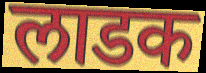
लाडक